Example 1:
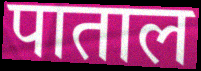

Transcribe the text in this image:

पाताल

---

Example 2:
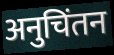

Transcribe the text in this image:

अनुचिंतन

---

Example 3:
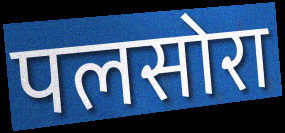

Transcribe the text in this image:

पलसोरा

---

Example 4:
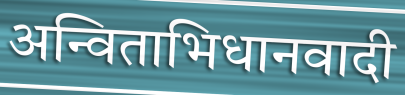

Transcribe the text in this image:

अन्विताभिधानवादी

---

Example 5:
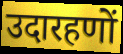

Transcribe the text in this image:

उदारहणों